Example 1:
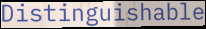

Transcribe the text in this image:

Distinguishable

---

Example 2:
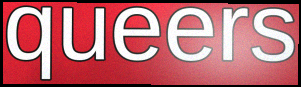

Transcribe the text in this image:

queers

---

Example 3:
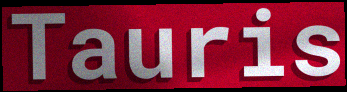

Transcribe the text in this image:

Tauris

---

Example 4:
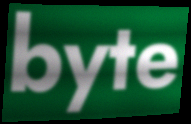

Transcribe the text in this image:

byte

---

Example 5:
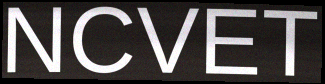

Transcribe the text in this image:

NCVET